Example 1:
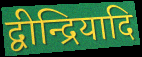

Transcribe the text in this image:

द्वीन्द्रियादि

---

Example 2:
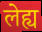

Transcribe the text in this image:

लेह्य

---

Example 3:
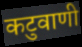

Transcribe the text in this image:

कटुवाणी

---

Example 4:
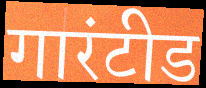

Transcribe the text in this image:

गारंटीड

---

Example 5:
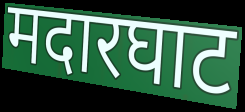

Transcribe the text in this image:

मदारघाट